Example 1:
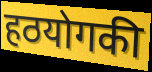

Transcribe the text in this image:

हठयोगकी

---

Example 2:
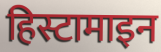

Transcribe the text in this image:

हिस्टामाइन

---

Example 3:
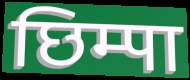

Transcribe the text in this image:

छिम्पा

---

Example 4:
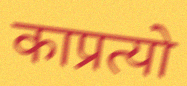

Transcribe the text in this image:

काप्रत्यो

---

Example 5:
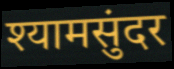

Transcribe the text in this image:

श्यामसुंदर